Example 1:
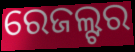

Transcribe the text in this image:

ରେଜଲ୍ଟର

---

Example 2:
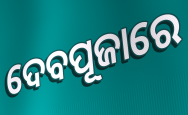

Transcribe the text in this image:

ଦେବପୂଜାରେ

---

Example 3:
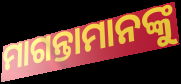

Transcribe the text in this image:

ମାଗନ୍ତାମାନଙ୍କୁ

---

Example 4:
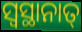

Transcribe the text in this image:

ସ୍ଵସ୍ଥାନାତ୍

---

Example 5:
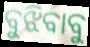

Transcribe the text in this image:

ବୁଝିବାବୁ